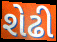
શેઢી